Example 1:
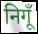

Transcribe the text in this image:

निगूँ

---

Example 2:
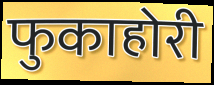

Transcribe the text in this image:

फुकाहोरी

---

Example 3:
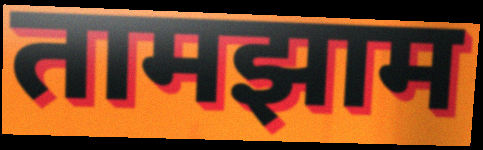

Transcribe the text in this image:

तामझाम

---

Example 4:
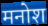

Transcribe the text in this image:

मनोश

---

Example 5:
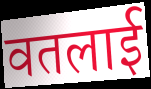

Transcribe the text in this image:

वतलाई